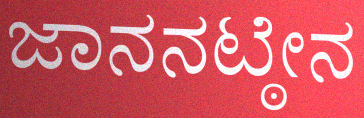
ಜಾನನಟ್ಠೇನ